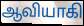
ஆவியாகி